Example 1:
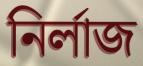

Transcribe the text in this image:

নির্লাজ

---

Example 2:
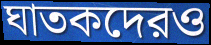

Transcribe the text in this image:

ঘাতকদেরও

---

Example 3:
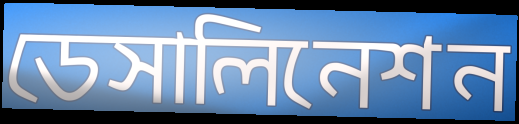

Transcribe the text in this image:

ডেসালিনেশন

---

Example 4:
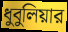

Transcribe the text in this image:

ধুবুলিয়ার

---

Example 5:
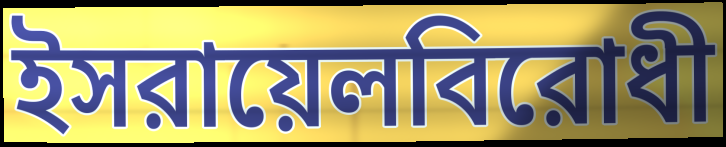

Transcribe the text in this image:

ইসরায়েলবিরোধী